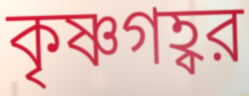
কৃষ্ণগহ্বর